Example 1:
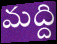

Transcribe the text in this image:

మద్ది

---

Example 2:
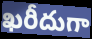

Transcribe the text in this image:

ఖరీదుగా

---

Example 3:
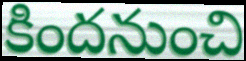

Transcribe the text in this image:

కిందనుంచి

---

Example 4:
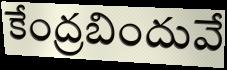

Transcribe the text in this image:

కేంద్రబిందువే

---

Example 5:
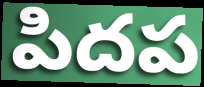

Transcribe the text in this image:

పిదప